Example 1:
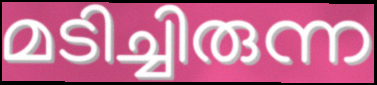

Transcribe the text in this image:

മടിച്ചിരുന്ന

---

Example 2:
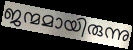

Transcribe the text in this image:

ജന്മമായിരുന്നു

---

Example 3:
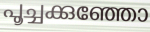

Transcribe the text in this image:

പൂച്ചക്കുഞ്ഞോ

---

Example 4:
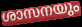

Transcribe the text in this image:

ശാസനയും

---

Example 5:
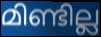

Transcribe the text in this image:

മിണ്ടില്ല